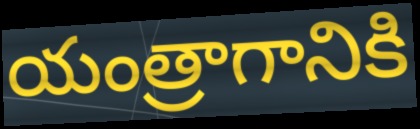
యంత్రాగానికి